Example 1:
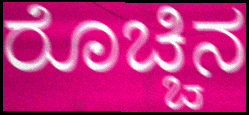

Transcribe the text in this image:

ರೊಚ್ಚಿನ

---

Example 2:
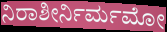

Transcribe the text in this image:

ನಿರಾಶೀರ್ನಿರ್ಮಮೋ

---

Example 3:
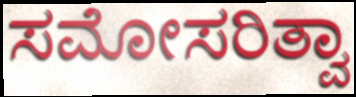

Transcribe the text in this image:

ಸಮೋಸರಿತ್ವಾ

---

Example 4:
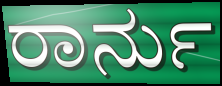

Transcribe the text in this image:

ರಾರ್ನು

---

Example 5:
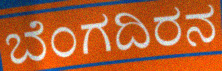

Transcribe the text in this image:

ಬೆಂಗದಿರನ